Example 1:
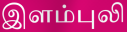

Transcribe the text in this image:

இளம்புலி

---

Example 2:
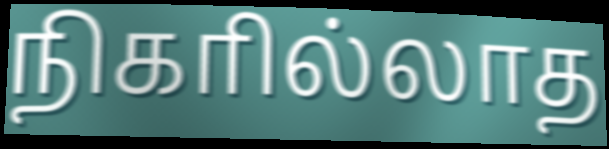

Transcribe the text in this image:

நிகரில்லாத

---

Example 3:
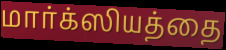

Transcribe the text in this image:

மார்க்ஸியத்தை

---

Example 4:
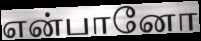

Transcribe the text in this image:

என்பானோ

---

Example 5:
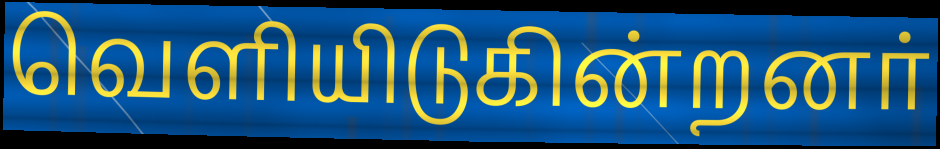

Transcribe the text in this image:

வெளியிடுகின்றனர்